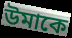
উমাকে